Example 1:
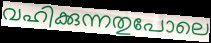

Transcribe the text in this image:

വഹിക്കുന്നതുപോലെ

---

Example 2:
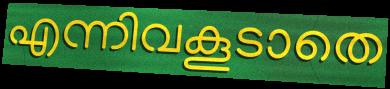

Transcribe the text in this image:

എന്നിവകൂടാതെ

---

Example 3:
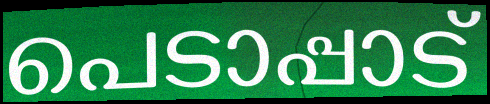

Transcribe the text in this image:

പെടാപ്പാട്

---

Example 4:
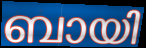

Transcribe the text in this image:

ബായി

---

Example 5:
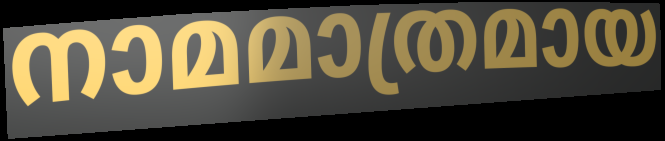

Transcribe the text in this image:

നാമമാത്രമായ